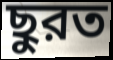
ছুরত